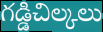
గడ్డిచిల్కలు